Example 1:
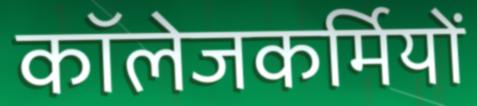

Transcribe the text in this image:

कॉलेजकर्मियों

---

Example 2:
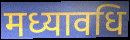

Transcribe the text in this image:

मध्यावधि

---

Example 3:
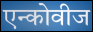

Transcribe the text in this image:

एन्कोवीज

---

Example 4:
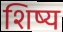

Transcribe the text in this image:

शिष्य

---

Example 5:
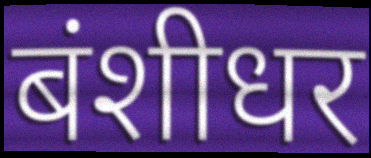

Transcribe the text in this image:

बंशीधर